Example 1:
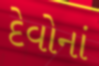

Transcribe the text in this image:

દેવોનાં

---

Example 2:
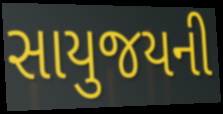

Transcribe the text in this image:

સાયુજયની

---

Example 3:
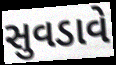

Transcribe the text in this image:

સુવડાવે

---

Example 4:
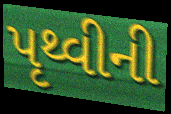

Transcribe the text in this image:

પૃથ્વીની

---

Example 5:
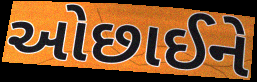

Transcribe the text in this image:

ઓછાઈને